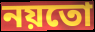
নয়তো